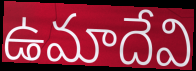
ఉమాదేవి